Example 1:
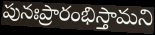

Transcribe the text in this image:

పునఃప్రారంభిస్తామని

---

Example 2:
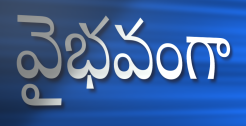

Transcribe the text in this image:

వైభవంగా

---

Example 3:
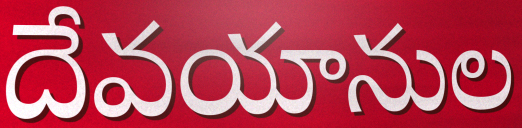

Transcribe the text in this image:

దేవయానుల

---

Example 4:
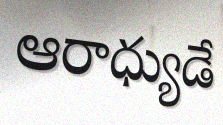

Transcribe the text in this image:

ఆరాధ్యుడే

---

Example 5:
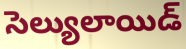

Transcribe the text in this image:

సెల్యులాయిడ్